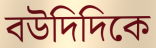
বউদিদিকে